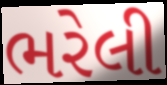
ભરેલી